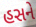
હસને